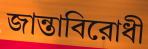
জান্তাবিরোধী